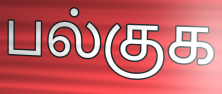
பல்குக